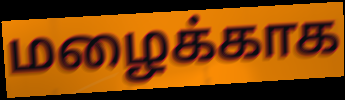
மழைக்காக